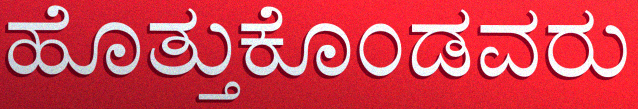
ಹೊತ್ತುಕೊಂಡವರು